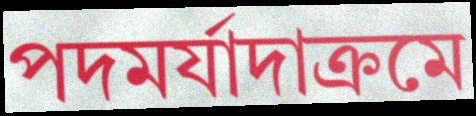
পদমর্যাদাক্রমে